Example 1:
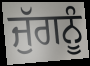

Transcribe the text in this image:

ਜੁੱਗਨੂੰ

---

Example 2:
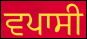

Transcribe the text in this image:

ਵਪਾਸੀ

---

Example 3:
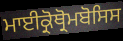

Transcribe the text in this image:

ਮਾਈਕ੍ਰੋਥ੍ਰੋਮਬੋਸਿਸ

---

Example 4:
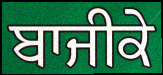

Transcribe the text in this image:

ਬਾਜੀਕੇ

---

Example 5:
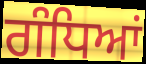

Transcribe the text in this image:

ਗੰਧਿਆਂ